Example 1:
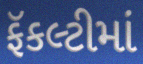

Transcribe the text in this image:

ફૅકલ્ટીમાં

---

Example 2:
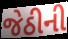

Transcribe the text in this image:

જેઠીની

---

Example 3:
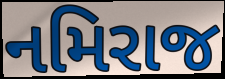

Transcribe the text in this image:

નમિરાજ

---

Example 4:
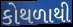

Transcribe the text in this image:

કોથળાથી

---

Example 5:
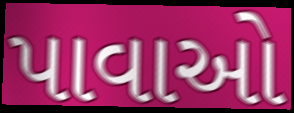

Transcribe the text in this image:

પાવાઓ